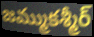
జమ్ముకశ్మీర్